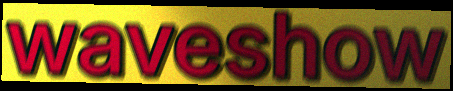
waveshow